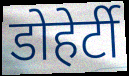
डोहेर्टी